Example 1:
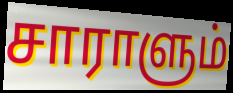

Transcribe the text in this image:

சாராளும்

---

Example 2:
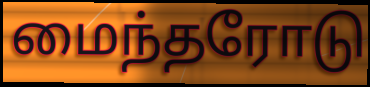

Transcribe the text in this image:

மைந்தரோடு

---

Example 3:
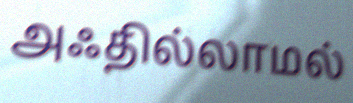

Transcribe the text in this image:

அஃதில்லாமல்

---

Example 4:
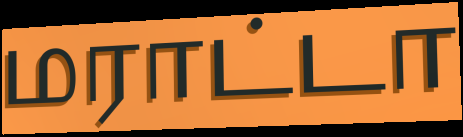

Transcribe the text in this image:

மராட்டா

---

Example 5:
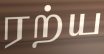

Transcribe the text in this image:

ரற்ய